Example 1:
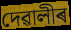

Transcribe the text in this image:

দেৱালীৰ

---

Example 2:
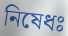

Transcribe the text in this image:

নিষেধঃ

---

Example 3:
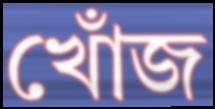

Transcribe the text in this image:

খোঁজ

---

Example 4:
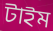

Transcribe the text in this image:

টাইম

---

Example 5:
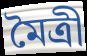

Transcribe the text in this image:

মৈত্ৰী